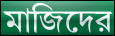
মাজিদের